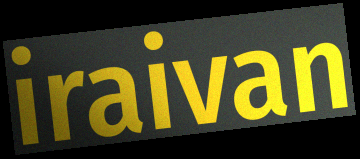
iraivan